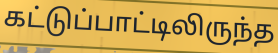
கட்டுப்பாட்டிலிருந்த